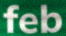
feb